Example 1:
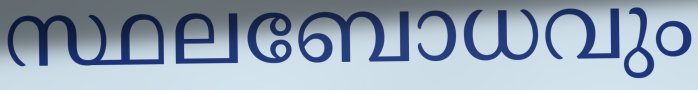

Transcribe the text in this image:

സ്ഥലബോധവും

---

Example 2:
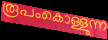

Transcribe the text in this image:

രൂപംകൊള്ളുന്ന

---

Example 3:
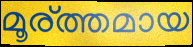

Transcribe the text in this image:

മൂര്ത്തമായ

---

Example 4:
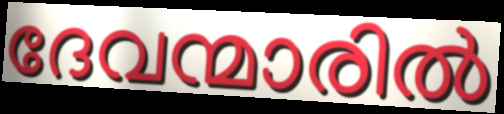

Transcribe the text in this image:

ദേവന്മാരിൽ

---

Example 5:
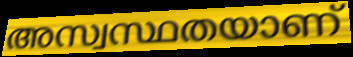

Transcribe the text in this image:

അസ്വസ്ഥതയാണ്